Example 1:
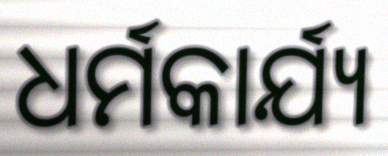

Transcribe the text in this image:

ଧର୍ମକାର୍ଯ୍ୟ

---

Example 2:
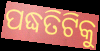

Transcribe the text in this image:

ପଦ୍ଧତିଟିକୁ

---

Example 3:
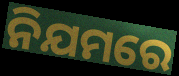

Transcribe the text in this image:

ନିଯମରେ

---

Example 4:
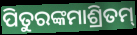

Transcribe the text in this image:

ପିତୁରଙ୍କମାଶ୍ରିତମ୍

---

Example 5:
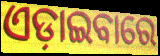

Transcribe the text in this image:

ଏଡ଼ାଇବାରେ